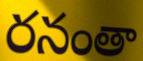
రనంతా